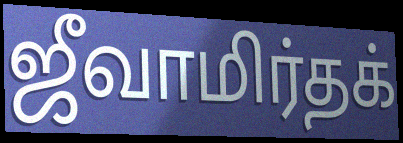
ஜீவாமிர்தக்